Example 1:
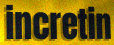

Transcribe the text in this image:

incretin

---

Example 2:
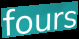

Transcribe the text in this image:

fours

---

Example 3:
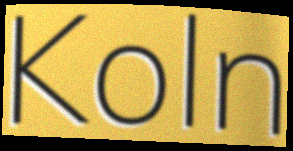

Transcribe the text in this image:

Koln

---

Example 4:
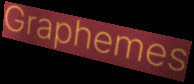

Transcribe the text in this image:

Graphemes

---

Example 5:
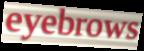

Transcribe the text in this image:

eyebrows